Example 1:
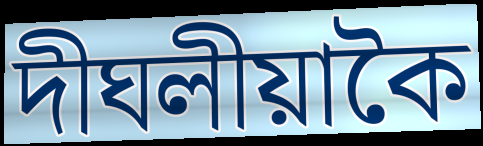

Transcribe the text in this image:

দীঘলীয়াকৈ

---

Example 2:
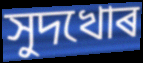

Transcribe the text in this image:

সুদখোৰ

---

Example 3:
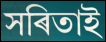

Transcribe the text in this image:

সৰিতাই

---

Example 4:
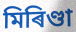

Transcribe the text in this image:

মিৰিণ্ডা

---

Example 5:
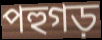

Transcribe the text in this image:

পহুগড়